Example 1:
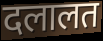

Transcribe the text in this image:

दलालत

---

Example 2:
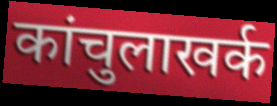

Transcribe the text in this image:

कांचुलाखर्क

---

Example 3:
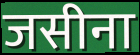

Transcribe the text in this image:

जसीना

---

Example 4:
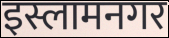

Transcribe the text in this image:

इस्लामनगर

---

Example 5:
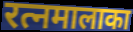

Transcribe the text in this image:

रत्नमालाका